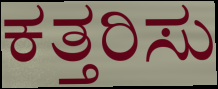
ಕತ್ತರಿಸು